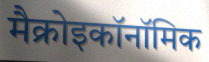
मैक्रोइकॉनॉमिक